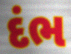
દંભ